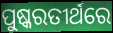
ପୁଷ୍କରତୀର୍ଥରେ